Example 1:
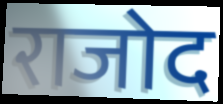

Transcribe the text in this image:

राजोद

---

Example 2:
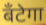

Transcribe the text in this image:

बँटेगा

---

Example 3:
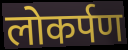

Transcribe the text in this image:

लोकर्पण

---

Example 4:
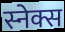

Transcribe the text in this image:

स्नेक्स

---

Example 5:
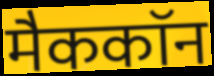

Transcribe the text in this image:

मैककॉन